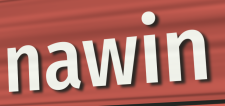
nawin